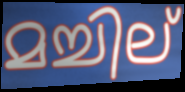
മച്ചില്